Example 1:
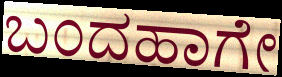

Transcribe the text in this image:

ಬಂದಹಾಗೇ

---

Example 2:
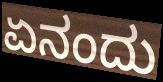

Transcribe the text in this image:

ಏನಂದು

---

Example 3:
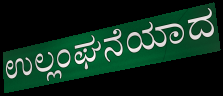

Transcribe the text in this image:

ಉಲ್ಲಂಘನೆಯಾದ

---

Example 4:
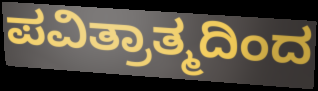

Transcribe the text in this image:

ಪವಿತ್ರಾತ್ಮದಿಂದ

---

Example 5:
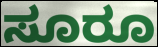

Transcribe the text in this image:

ಸೂರೂ